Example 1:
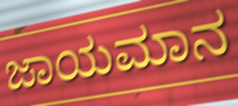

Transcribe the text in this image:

ಜಾಯಮಾನ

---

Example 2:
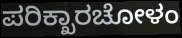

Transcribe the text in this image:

ಪರಿಕ್ಖಾರಚೋಳಂ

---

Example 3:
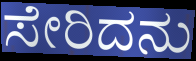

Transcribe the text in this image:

ಸೇರಿದನು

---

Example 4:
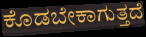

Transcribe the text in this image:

ಕೊಡಬೇಕಾಗುತ್ತದೆ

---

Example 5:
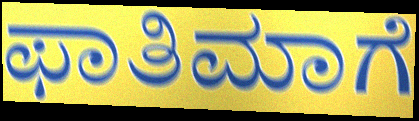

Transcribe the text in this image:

ಫಾತಿಮಾಗೆ